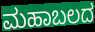
ಮಹಾಬಲದ